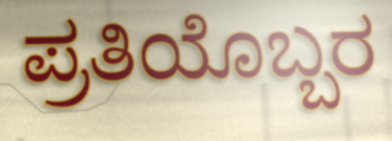
ಪ್ರತಿಯೊಬ್ಬರ